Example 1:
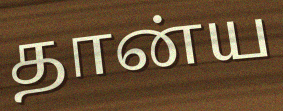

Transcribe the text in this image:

தான்ய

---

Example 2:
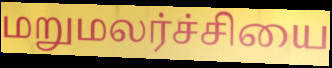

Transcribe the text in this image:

மறுமலர்ச்சியை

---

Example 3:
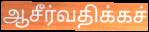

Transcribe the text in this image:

ஆசீர்வதிக்கச்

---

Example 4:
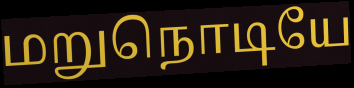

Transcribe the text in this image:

மறுநொடியே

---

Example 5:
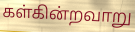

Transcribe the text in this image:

கள்கின்றவாறு